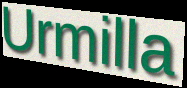
Urmilla